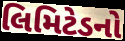
લિમિટેડનો